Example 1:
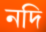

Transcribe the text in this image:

নদি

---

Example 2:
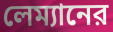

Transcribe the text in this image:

লেম্যানের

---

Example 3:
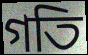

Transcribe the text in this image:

গতি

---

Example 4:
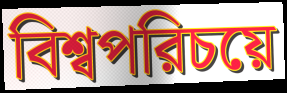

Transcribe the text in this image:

বিশ্বপরিচয়ে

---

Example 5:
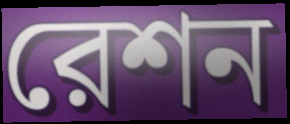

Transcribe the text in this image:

রেশন